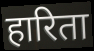
हारिता